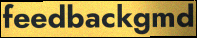
feedbackgmd